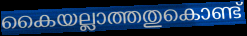
കൈയല്ലാത്തതുകൊണ്ട്